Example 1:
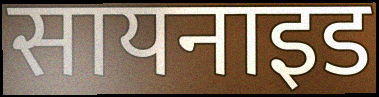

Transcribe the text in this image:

सायनाइड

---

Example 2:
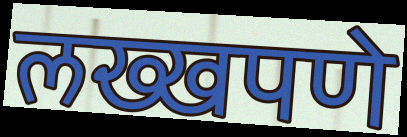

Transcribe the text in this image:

लख्खपणे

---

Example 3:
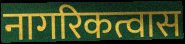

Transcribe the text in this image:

नागरिकत्वास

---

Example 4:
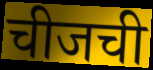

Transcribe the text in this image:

चीजची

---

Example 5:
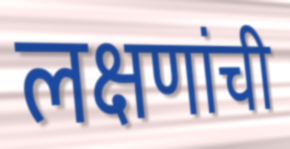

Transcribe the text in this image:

लक्षणांची